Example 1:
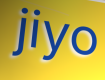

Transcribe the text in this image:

jiyo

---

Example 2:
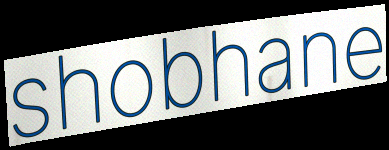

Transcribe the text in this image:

shobhane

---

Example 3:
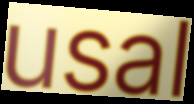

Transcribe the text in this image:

usal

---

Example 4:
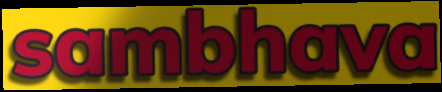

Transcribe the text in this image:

sambhava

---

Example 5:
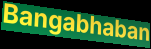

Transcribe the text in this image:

Bangabhaban